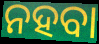
ନହବା